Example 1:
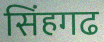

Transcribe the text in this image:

सिंहगढ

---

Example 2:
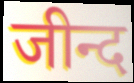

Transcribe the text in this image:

जीन्द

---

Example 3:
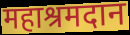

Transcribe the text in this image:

महाश्रमदान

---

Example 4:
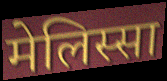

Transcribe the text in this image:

मेलिस्सा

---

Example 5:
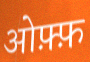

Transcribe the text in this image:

ओफ़्फ़